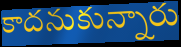
కాదనుకున్నారు